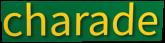
charade